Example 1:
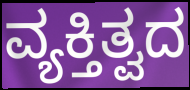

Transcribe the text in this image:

ವ್ಯಕ್ತಿತ್ವದ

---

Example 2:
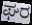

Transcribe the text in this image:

ಘರ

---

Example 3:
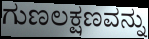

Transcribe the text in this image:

ಗುಣಲಕ್ಷಣವನ್ನು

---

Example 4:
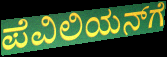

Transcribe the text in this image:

ಪೆವಿಲಿಯನ್‌ಗೆ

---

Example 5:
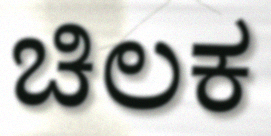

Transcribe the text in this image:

ಚಿಲಕ